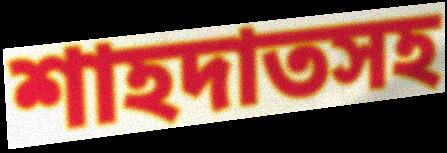
শাহদাতসহ